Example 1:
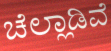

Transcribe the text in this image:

ಚೆಲ್ಲಾಡಿವೆ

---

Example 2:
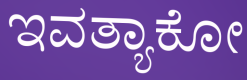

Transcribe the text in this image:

ಇವತ್ಯಾಕೋ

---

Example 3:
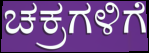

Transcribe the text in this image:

ಚಕ್ರಗಳಿಗೆ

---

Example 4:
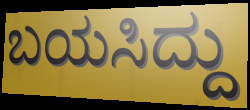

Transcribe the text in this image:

ಬಯಸಿದ್ದು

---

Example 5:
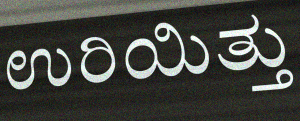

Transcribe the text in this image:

ಉರಿಯಿತ್ತು